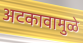
अटकावामुळे